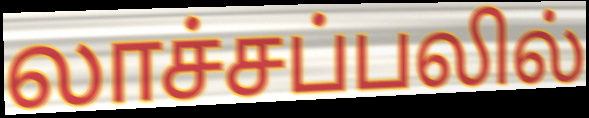
லாச்சப்பலில்